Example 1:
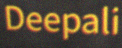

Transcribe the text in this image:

Deepali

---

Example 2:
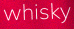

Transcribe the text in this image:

whisky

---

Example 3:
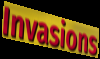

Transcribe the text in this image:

Invasions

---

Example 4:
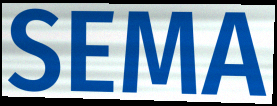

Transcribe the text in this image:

SEMA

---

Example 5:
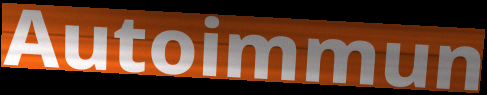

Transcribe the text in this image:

Autoimmun